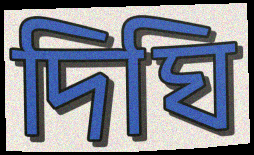
দিঘি